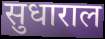
सुधाराल